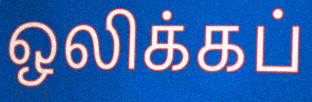
ஒலிக்கப்